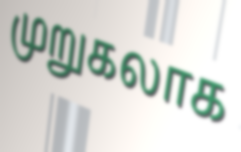
முறுகலாக